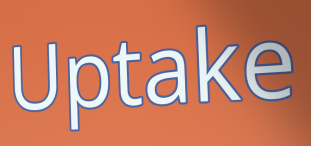
Uptake